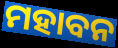
ମହାବନ